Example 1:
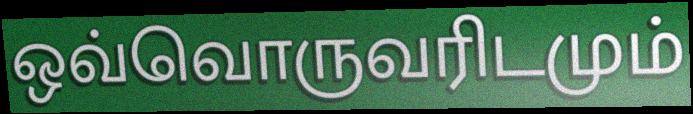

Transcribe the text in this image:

ஒவ்வொருவரிடமும்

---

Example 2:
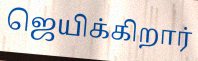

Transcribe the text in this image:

ஜெயிக்கிறார்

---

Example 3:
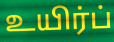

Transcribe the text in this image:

உயிர்ப்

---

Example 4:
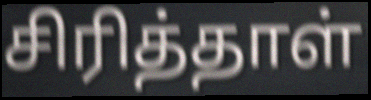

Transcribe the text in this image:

சிரித்தாள்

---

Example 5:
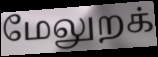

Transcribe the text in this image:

மேலுறக்